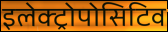
इलेक्ट्रोपोसिटिव